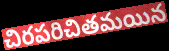
చిరపరిచితమయిన